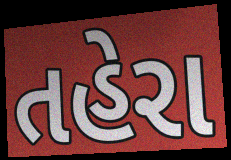
તહેરા